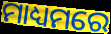
ମାଧ୍ୟମରେ